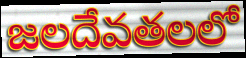
జలదేవతలలో